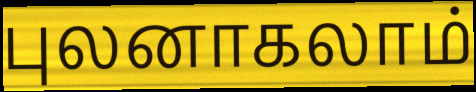
புலனாகலாம்